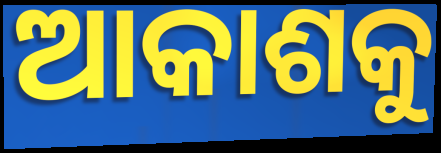
ଆକାଶକୁ